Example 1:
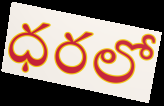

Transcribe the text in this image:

ధరలో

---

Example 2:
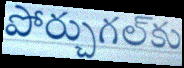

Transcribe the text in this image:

పోర్చుగల్‌కు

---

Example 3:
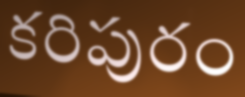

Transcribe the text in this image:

కరిపురం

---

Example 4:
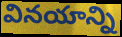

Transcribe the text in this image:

వినయాన్ని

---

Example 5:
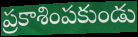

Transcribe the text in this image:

ప్రకాశింపకుండు